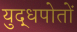
युद्धपोतों